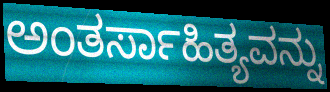
ಅಂತರ್ಸಾಹಿತ್ಯವನ್ನು